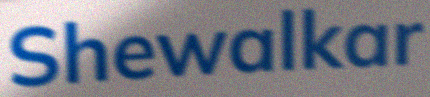
Shewalkar